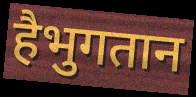
हैभुगतान